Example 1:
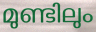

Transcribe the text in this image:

മുണ്ടിലും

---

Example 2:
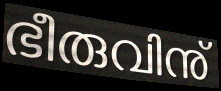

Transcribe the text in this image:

ഭീരുവിനു്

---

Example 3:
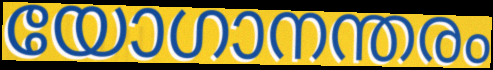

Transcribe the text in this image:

യോഗാനന്തരം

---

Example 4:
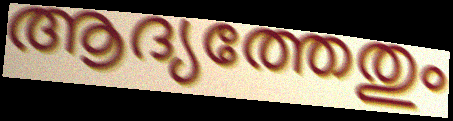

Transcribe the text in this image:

ആദ്യത്തേതും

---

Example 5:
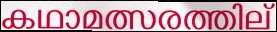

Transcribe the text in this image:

കഥാമത്സരത്തില്